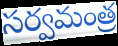
సర్వమంత్ర